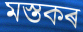
মস্তকৰ